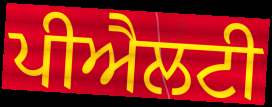
ਪੀਐਲਟੀ